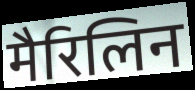
मैरिलिन